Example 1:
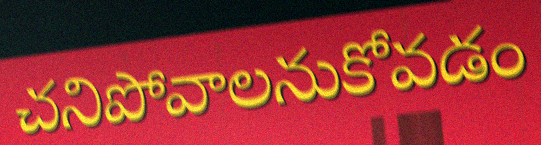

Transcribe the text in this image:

చనిపోవాలనుకోవడం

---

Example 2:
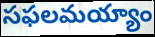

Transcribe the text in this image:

సఫలమయ్యాం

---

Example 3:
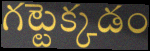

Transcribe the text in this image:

గట్టెక్కడం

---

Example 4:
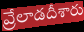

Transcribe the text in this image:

వ్రేలాడదీశారు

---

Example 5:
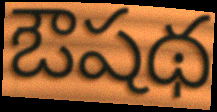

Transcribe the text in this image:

ఔషథ